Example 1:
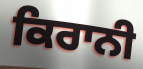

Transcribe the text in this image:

ਕਿਰਾਨੀ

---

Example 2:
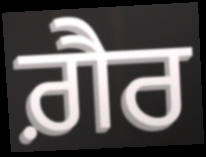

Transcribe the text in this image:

ਗ਼ੈਰ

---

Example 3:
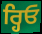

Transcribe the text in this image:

ਰ੍ਹਿਓ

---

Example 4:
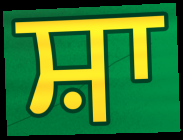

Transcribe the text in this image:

ਸ਼ਾ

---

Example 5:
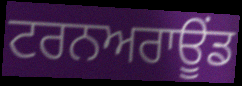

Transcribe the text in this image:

ਟਰਨਅਰਾਊਂਡ